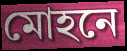
মোহনে